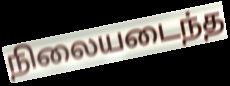
நிலையடைந்த